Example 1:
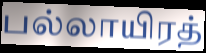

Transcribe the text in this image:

பல்லாயிரத்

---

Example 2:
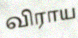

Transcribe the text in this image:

விராய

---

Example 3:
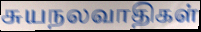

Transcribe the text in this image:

சுயநலவாதிகள்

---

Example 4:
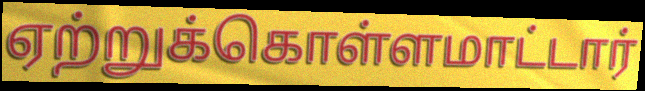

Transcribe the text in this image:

ஏற்றுக்கொள்ளமாட்டார்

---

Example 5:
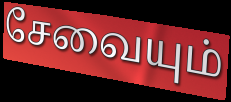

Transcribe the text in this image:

சேவையும்